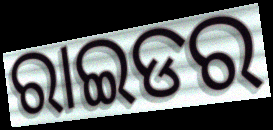
ରାଇଡର